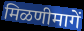
मिळणीमागें